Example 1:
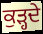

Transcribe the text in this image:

ਕੁੜ੍ਹਦੇ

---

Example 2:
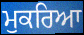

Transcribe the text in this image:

ਮੁਕਰਿਆ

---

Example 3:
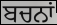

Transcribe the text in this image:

ਬਚਨਾਂ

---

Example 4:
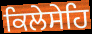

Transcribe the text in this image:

ਕਿਲੇਸੇਹਿ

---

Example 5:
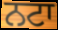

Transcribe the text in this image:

ਨਟਾ